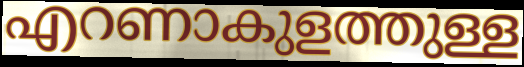
എറണാകുളത്തുള്ള